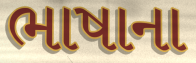
ભાષાના